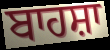
ਬਾਹਸ਼ਾ